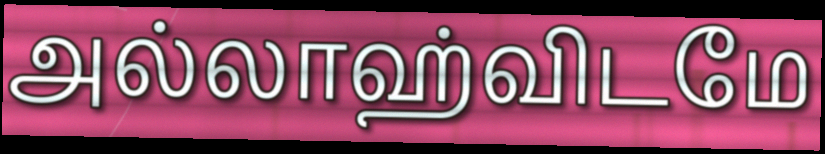
அல்லாஹ்விடமே